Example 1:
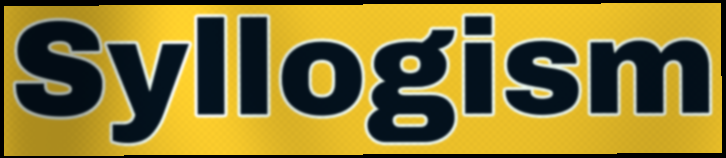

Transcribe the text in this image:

Syllogism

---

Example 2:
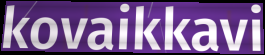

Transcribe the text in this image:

kovaikkavi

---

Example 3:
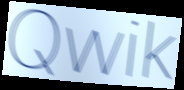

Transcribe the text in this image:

Qwik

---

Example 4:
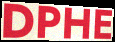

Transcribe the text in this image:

DPHE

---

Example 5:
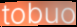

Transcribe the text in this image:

tobuo